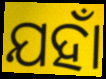
ଯହାଁ